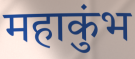
महाकुंभ